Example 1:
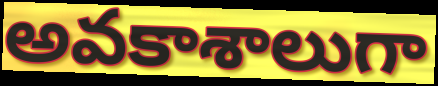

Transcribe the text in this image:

అవకాశాలుగా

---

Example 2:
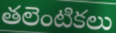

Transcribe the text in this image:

తలెంటికలు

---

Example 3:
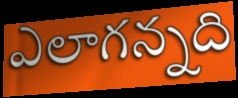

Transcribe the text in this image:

ఎలాగన్నది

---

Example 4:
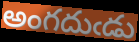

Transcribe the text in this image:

అంగదుఁడు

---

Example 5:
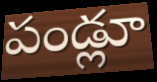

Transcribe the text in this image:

పండ్లూ